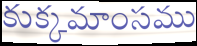
కుక్కమాంసము